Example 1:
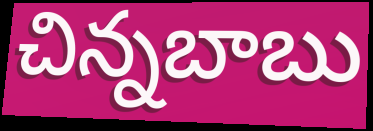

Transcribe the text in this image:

చిన్నబాబు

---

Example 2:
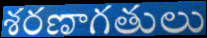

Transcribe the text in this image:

శరణాగతులు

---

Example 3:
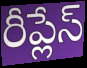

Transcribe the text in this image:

రీప్లేస్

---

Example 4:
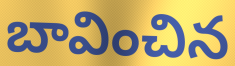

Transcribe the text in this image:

బావించిన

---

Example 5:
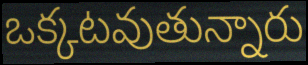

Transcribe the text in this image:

ఒక్కటవుతున్నారు